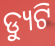
ଡ୍ୟୁଟି